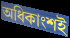
অধিকাংশই